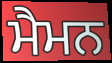
ਮੈਮਨ